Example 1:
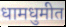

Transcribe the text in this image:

धामधुमीत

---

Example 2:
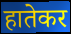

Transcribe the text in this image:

हातेकर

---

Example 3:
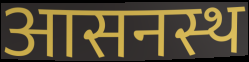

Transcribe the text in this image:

आसनस्थ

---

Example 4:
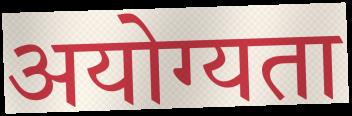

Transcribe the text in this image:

अयोग्यता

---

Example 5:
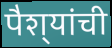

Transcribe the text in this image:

पैश्यांची